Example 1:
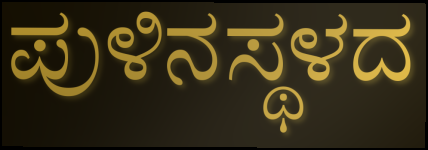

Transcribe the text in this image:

ಪುಳಿನಸ್ಥಳದ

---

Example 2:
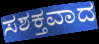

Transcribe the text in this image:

ಸಶಕ್ತವಾದ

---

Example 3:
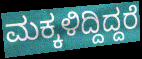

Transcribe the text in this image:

ಮಕ್ಕಳಿದ್ದಿದ್ದರೆ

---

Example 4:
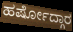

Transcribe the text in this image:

ಹರ್ಷೋದ್ಗಾರ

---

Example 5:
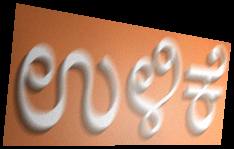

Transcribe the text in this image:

ಉಳಿಕೆ